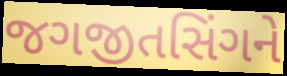
જગજીતસિંગને